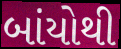
બાંયોથી